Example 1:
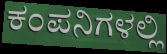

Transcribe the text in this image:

ಕಂಪನಿಗಳಲ್ಲಿ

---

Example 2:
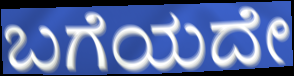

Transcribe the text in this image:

ಬಗೆಯದೇ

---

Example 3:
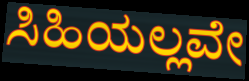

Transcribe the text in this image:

ಸಿಹಿಯಲ್ಲವೇ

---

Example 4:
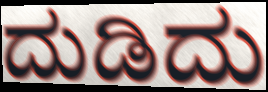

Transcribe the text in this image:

ದುಡಿದು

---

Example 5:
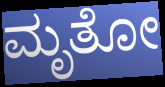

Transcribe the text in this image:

ಮೃತೋ